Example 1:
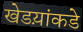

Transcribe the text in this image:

खेडय़ांकडे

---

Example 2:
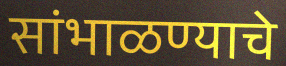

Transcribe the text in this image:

सांभाळण्याचे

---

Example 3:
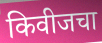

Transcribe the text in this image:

किवीजचा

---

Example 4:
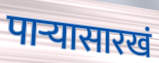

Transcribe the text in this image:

पाऱ्यासारखं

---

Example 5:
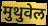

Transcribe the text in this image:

मुथुवेल